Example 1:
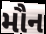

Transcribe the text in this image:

મૌન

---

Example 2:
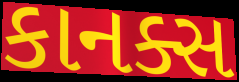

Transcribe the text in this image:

કાનક્સ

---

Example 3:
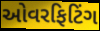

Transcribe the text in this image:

ઓવરફિટિંગ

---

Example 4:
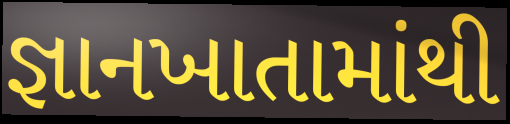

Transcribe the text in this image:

જ્ઞાનખાતામાંથી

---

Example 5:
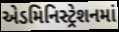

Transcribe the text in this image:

એડમિનિસ્ટ્રેશનમાં